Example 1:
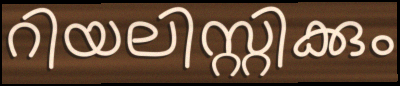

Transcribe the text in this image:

റിയലിസ്റ്റിക്കും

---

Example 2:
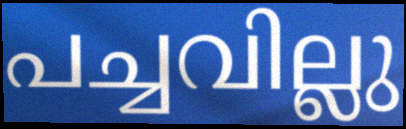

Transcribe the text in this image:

പച്ചവില്ലു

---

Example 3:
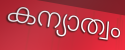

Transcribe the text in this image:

കന്യാത്വം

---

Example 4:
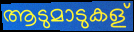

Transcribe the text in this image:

ആടുമാടുകള്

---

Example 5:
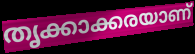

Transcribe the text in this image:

തൃക്കാക്കരയാണ്